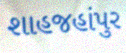
શાહજહાંપુર